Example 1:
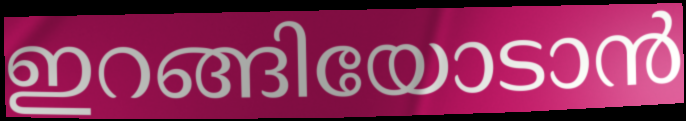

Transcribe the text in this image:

ഇറങ്ങിയോടാൻ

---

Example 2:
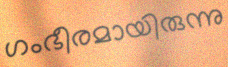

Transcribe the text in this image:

ഗംഭീരമായിരുന്നു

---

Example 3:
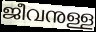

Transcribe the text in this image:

ജീവനുള്ള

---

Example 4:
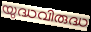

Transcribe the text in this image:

യുദ്ധവിരുദ്ധ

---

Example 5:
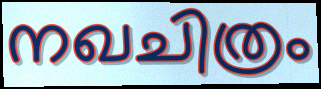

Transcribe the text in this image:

നഖചിത്രം